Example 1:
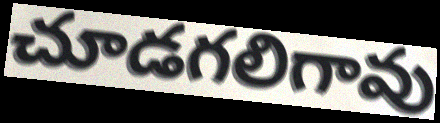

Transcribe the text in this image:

చూడగలిగావు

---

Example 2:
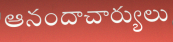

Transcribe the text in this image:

ఆనందాచార్యులు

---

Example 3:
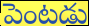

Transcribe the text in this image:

పెంటడు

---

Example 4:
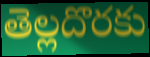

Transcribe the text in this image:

తెల్లదొరకు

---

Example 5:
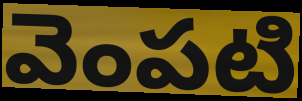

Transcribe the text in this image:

వెంపటి